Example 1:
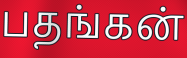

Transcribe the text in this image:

பதங்கன்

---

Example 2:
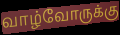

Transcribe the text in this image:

வாழ்வோருக்கு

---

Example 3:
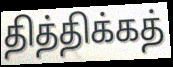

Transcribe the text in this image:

தித்திக்கத்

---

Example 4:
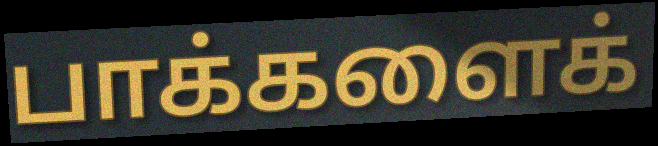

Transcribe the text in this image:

பாக்களைக்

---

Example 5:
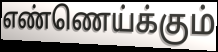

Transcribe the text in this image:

எண்ணெய்க்கும்